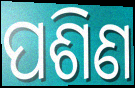
ପଶିଣ